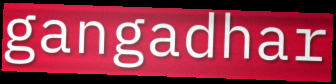
gangadhar